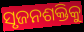
ସୃଜନଶକ୍ତିକୁ